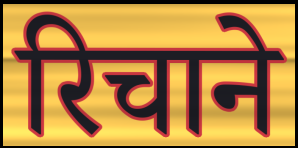
रिचाने